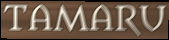
TAMARU